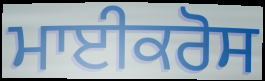
ਮਾਈਕਰੋਸ